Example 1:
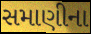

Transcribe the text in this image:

સમાણીના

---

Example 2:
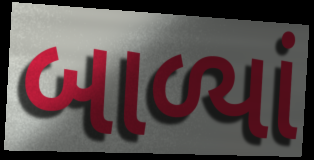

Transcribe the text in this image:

બાળ્યાં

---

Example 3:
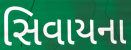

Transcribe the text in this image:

સિવાયના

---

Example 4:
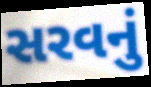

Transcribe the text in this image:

સરવનું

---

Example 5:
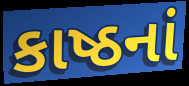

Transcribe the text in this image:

કાષ્ઠનાં